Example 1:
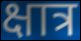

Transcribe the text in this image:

क्षात्र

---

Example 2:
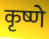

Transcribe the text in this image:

कृष्णे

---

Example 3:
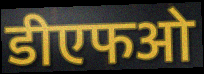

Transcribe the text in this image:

डीएफओ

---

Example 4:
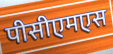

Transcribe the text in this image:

पीसीएमएस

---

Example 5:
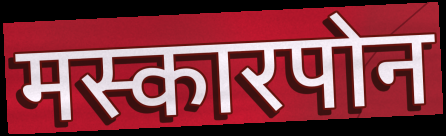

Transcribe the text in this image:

मस्कारपोन